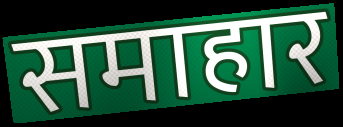
समाहार